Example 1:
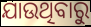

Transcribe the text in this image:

ଯାଉଥିବାରୁ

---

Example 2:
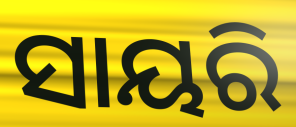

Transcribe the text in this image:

ସାୟରି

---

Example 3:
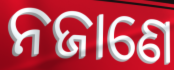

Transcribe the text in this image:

ନଜାଣେ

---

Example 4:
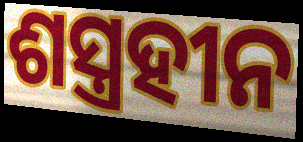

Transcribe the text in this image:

ଶସ୍ତ୍ରହୀନ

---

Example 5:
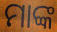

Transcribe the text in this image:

ମାଙ୍କ